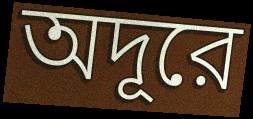
অদূরে